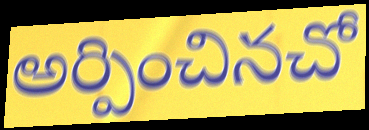
అర్పించినచో